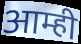
आम्‍ही